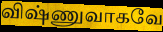
விஷ்ணுவாகவே